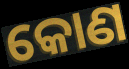
କୋଣ